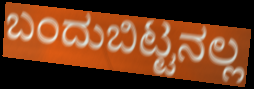
ಬಂದುಬಿಟ್ಟನಲ್ಲ